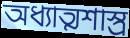
অধ্যাত্মশাস্ত্র